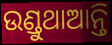
ଉଣ୍ଡୁଥାଆନ୍ତି